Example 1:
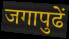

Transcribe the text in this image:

जगापुढें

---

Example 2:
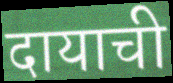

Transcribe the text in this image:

दायाची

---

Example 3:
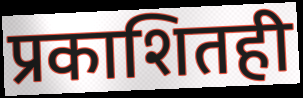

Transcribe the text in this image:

प्रकाशितही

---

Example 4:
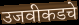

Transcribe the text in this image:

उजवीकडचे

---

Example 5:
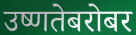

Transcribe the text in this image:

उष्णतेबरोबर